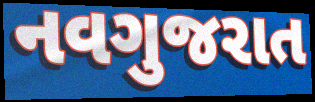
નવગુજરાત